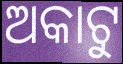
ଅକାଟୁ